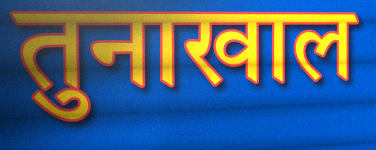
तुनाखाल